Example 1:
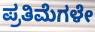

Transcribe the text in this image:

ಪ್ರತಿಮೆಗಳೇ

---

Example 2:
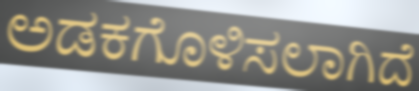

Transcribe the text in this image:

ಅಡಕಗೊಳಿಸಲಾಗಿದೆ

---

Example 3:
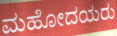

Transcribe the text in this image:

ಮಹೋದಯರು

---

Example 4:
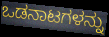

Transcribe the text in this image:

ಒಡನಾಟಗಳನ್ನು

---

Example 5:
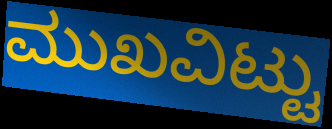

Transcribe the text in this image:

ಮುಖವಿಟ್ಟು